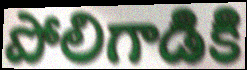
పోలిగాడికి